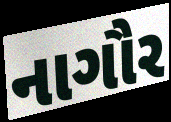
નાગૌર